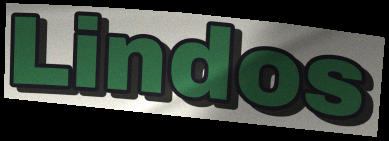
Lindos